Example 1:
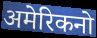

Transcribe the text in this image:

अमेरिकनो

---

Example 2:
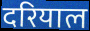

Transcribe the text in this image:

दरियाल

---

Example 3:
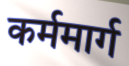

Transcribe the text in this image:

कर्ममार्ग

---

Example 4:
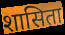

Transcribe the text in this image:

शासिता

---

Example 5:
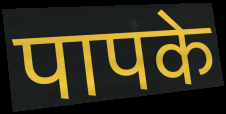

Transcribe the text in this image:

पापके